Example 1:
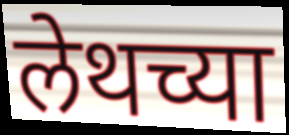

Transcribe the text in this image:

लेथच्या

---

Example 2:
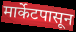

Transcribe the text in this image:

मार्केटपासून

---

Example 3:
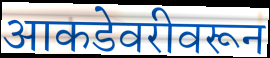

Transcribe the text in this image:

आकडेवरीवरून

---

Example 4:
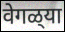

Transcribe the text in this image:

वेगळ्‌या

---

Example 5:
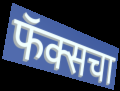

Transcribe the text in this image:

फॅक्सचा